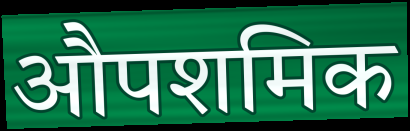
औपशमिक